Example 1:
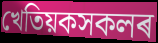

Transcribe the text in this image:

খেতিয়কসকলৰ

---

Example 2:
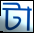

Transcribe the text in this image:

টা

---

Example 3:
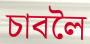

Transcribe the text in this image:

চাবলৈ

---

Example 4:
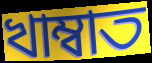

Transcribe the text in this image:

খাম্বাত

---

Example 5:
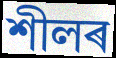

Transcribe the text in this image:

শীলৰ